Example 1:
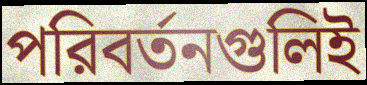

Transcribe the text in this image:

পরিবর্তনগুলিই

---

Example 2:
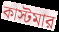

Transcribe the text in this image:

কাস্টমার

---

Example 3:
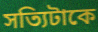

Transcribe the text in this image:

সত্যিটাকে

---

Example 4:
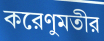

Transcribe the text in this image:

করেণুমতীর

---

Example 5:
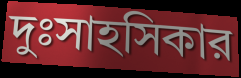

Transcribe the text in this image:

দুঃসাহসিকার